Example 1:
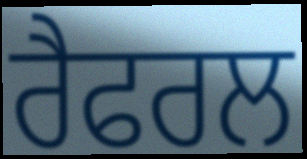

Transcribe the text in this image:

ਰੈਫਰਲ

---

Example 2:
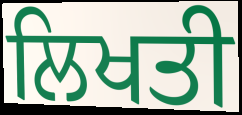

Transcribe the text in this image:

ਲਿਖਤੀ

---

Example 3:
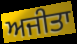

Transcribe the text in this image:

ਅਜੀਤਾ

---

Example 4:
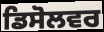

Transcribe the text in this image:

ਡਿਸੋਲਵਰ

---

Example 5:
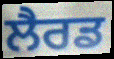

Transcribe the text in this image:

ਲੈਰਡ